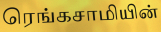
ரெங்கசாமியின்